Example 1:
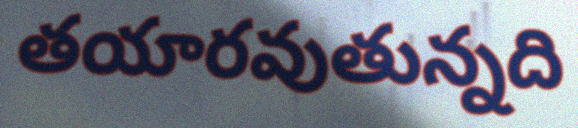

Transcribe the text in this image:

తయారవుతున్నది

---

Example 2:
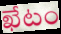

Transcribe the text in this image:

ఖేటం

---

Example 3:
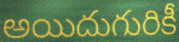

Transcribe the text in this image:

అయిదుగురికీ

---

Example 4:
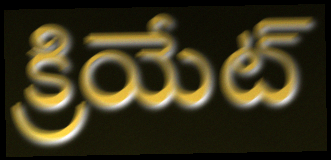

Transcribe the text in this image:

క్రియేట్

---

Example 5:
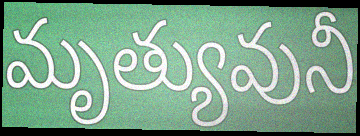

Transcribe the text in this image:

మృత్యువునీ